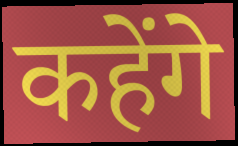
कहेंगे